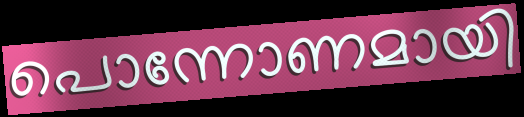
പൊന്നോണമായി